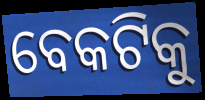
ବେକଟିକୁ